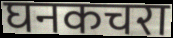
घनकचरा